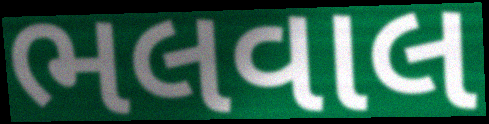
ભલવાલ